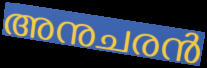
അനുചരൻ